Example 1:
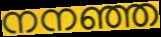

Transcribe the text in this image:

നനഞ്ഞ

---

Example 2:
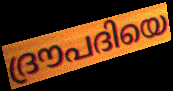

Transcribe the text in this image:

ദ്രൗപദിയെ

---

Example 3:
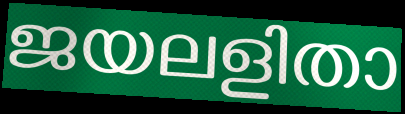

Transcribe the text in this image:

ജയലളിതാ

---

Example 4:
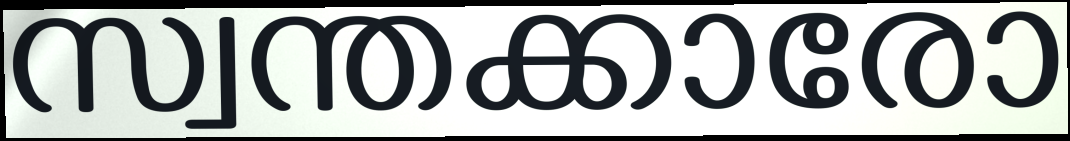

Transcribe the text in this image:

സ്വന്തക്കാരോ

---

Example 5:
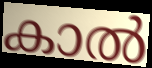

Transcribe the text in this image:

കാൽ